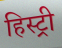
हिस्ट्री